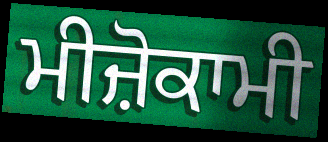
ਮੀਜ਼ੋਕਾਮੀ